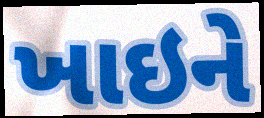
ખાઇને